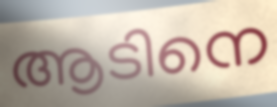
ആടിനെ